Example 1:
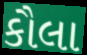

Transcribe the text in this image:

કૌલા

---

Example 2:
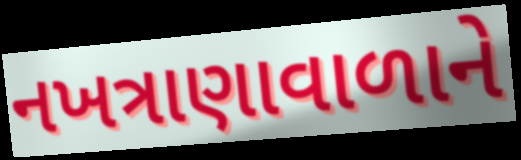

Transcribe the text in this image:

નખત્રાણાવાળાને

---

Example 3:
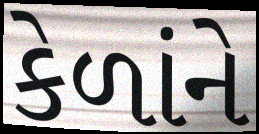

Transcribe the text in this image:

કેળાંને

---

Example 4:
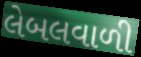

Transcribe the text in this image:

લેબલવાળી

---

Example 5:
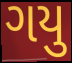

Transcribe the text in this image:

ગયુ